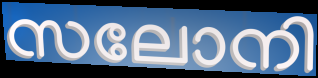
സലോനി